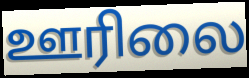
ஊரிலை